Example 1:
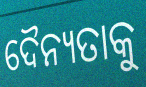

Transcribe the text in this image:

ଦୈନ୍ୟତାକୁ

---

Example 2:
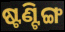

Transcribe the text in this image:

ଷ୍ଟଣ୍ଟିଙ୍ଗ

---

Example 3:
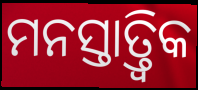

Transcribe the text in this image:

ମନସ୍ତାତ୍ତ୍ୱିକ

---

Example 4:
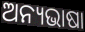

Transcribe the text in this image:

ଅନ୍ୟଭାଷା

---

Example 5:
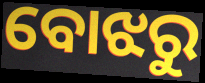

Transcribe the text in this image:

ବୋଝରୁ